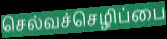
செல்வச்செழிப்பை